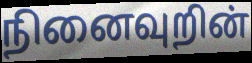
நினைவுறின்